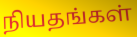
நியதங்கள்